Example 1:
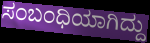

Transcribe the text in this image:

ಸಂಬಂಧಿಯಾಗಿದ್ದು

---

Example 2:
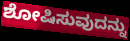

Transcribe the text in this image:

ಶೋಷಿಸುವುದನ್ನು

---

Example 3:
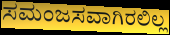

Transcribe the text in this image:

ಸಮಂಜಸವಾಗಿರಲಿಲ್ಲ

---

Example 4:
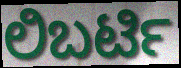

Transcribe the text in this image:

ಲಿಬರ್ಟಿ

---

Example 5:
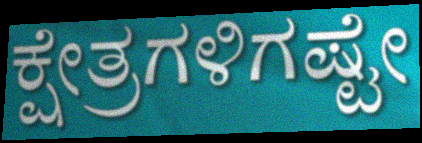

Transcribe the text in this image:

ಕ್ಷೇತ್ರಗಳಿಗಷ್ಟೇ